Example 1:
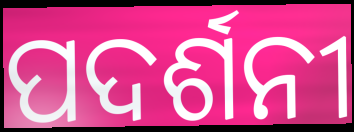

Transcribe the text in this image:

ପଦର୍ଶନୀ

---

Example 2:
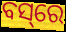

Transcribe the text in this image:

ବସ୍‌ରେ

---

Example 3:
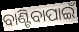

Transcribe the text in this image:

ବାଣ୍ଟିବାପାଇଁ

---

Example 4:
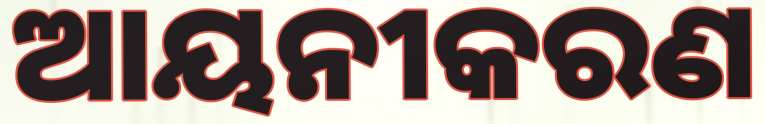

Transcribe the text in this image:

ଆୟନୀକରଣ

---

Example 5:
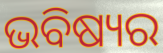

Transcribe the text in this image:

ଭବିଷ୍ୟର